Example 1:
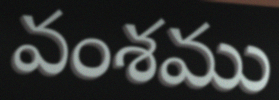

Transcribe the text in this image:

వంశము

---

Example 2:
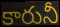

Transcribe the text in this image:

కారునీ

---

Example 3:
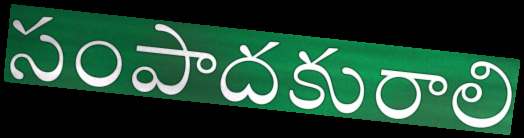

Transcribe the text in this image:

సంపాదకురాలి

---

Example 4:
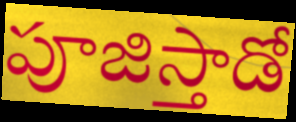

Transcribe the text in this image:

పూజిస్తాడో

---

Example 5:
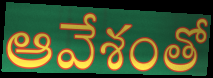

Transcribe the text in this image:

ఆవేశంతో